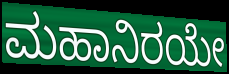
ಮಹಾನಿರಯೇ